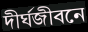
দীর্ঘজীবনে